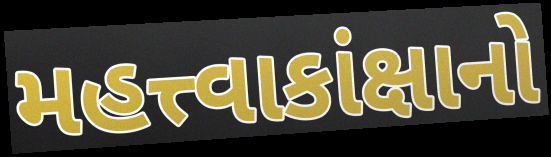
મહત્ત્વાકાંક્ષાનો